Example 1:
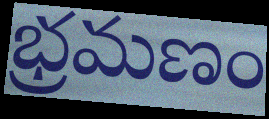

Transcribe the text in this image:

భ్రమణం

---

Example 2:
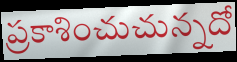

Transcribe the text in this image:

ప్రకాశించుచున్నదో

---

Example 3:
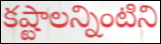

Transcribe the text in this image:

కష్టాలన్నింటిని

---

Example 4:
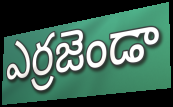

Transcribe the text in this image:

ఎర్రజెండా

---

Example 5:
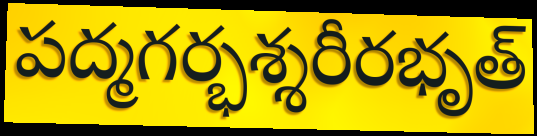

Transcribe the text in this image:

పద్మగర్భశ్శరీరభృత్